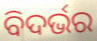
ବିଦର୍ଭର